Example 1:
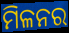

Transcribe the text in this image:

ମିଳନର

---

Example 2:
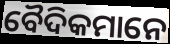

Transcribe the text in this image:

ବୈଦିକମାନେ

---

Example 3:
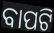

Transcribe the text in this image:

ବାପଟି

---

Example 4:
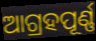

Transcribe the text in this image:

ଆଗ୍ରହପୂର୍ଣ୍ଣ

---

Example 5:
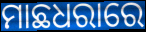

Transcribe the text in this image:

ମାଛଧରାରେ